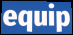
equip